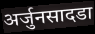
अर्जुनसादडा